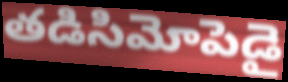
తడిసిమోపెడై